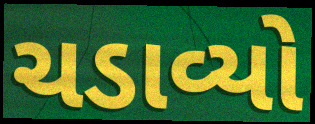
ચડાવ્યો